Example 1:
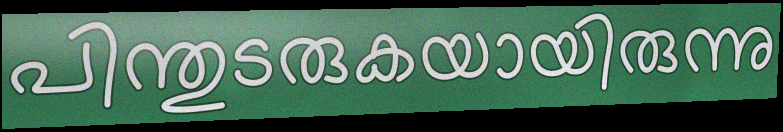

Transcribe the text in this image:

പിന്തുടരുകയായിരുന്നു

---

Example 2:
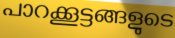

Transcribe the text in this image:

പാറക്കൂട്ടങ്ങളുടെ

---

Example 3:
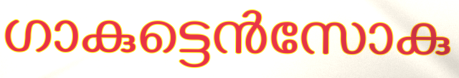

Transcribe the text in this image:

ഗാകുട്ടെൻസോകു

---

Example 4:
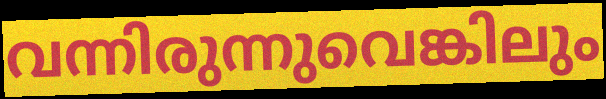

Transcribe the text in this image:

വന്നിരുന്നുവെങ്കിലും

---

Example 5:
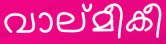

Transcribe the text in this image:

വാല്മീകീ